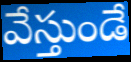
వేస్తుండే